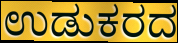
ಉಡುಕರದ